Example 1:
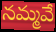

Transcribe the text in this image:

నమ్మవే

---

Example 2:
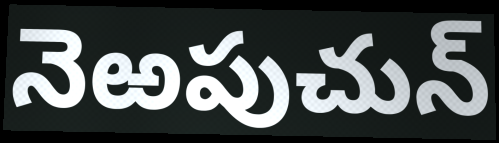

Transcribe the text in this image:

నెఱపుచున్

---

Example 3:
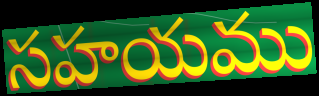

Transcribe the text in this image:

సహయము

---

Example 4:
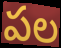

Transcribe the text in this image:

పల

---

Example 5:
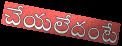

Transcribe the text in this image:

చేయలేదంటే